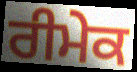
ਰੀਮੇਕ